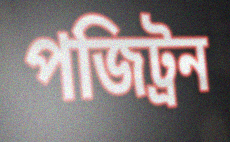
পজিট্রন